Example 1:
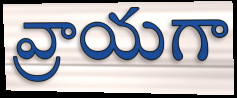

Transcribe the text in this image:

వ్రాయగా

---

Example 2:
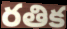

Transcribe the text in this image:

రతిక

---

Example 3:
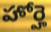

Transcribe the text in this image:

హోర్హె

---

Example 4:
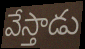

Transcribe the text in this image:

వేస్తాడు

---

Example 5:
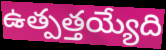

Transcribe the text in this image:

ఉత్పత్తయ్యేది